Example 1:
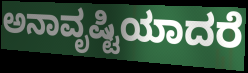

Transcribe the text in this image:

ಅನಾವೃಷ್ಟಿಯಾದರೆ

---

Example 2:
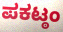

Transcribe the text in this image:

ಪಕಟ್ಠಂ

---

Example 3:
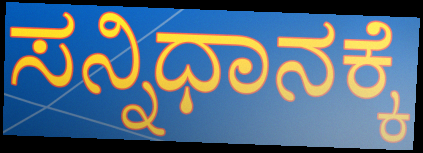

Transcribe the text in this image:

ಸನ್ನಿಧಾನಕ್ಕೆ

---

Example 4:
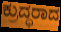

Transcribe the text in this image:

ಕ್ರುದ್ಧರಾದ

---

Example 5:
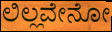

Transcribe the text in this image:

ಲಿಲ್ಲವೇನೋ